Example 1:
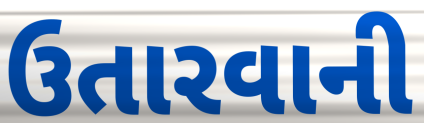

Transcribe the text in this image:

ઉતારવાની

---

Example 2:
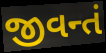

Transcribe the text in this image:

જીવન્તં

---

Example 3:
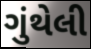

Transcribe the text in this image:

ગુંથેલી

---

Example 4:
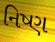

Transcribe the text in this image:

નિષ્ણ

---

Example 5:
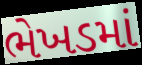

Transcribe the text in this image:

ભેખડમાં